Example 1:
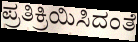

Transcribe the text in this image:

ಪ್ರತಿಕ್ರಿಯಿಸಿದಂತೆ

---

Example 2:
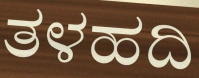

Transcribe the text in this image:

ತಳಹದಿ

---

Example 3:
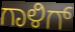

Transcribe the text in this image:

ಗಾಳಿಗ್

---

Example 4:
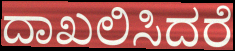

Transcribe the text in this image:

ದಾಖಲಿಸಿದರೆ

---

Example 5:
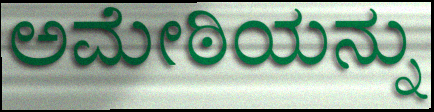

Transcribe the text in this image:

ಅಮೇಠಿಯನ್ನು